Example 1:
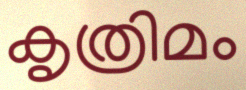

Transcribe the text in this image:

കൃത്രിമം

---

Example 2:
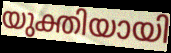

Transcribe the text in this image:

യുക്തിയായി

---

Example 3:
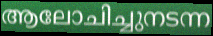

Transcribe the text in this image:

ആലോചിച്ചുനടന്ന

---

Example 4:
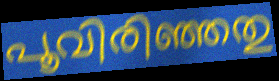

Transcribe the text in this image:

പൂവിരിഞ്ഞതു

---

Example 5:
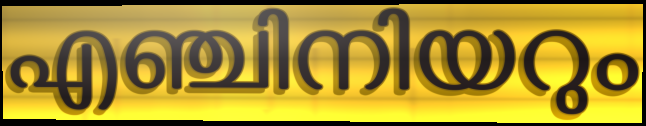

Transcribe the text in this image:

എഞ്ചിനിയറും